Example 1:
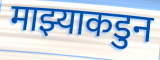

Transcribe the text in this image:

माझ्याकडुन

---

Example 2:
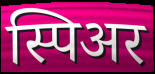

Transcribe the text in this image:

स्पिअर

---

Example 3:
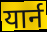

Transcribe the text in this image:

यार्न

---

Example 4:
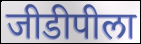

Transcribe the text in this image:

जीडीपीला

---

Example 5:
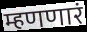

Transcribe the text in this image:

म्हणणारं